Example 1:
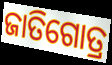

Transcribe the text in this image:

ଜାତିଗୋତ୍ର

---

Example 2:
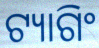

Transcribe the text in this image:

ଟ୍ୟାଗିଂ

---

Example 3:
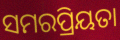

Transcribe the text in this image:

ସମରପ୍ରିୟତା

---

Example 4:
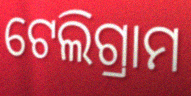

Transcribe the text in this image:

ଟେଲିଗ୍ରାମ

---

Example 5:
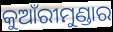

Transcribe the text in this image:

କୁଆଁରୀମୁଣ୍ଡାର